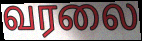
வரலை